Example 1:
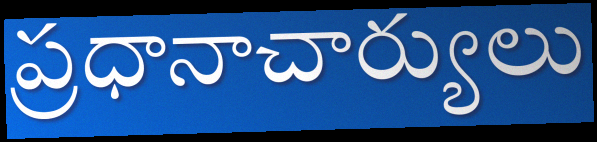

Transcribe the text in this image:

ప్రధానాచార్యులు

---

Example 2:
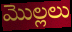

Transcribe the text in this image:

మొల్లలు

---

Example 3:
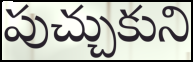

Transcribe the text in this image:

పుచ్చుకుని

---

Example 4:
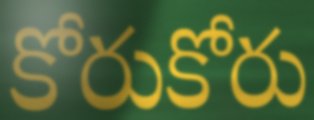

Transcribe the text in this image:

కోరుకోరు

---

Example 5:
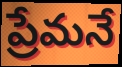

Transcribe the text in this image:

ప్రేమనే